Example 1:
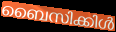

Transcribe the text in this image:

ബൈസിക്കിൾ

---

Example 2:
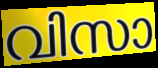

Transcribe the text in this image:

വിസാ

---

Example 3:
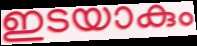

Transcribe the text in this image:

ഇടയാകും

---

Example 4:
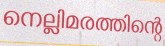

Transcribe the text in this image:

നെല്ലിമരത്തിന്റെ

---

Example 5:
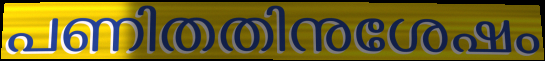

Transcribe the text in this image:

പണിതതിനുശേഷം